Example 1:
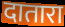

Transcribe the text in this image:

दातारा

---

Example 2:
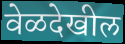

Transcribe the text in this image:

वेळदेखील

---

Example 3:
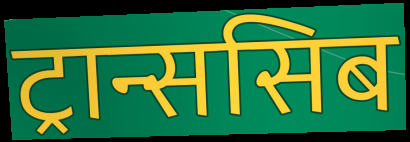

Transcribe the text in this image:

ट्रान्ससिब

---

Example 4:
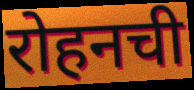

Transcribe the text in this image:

रोहनची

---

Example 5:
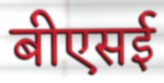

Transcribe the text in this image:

बीएसई